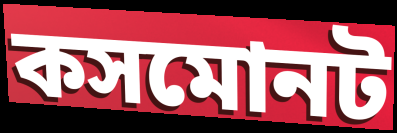
কসমোনট